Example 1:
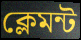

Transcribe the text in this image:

ক্লেমন্ট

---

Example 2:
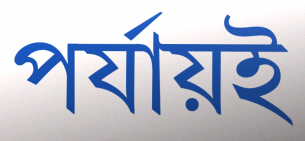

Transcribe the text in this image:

পর্যায়ই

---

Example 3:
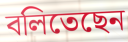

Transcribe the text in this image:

বলিতেছেন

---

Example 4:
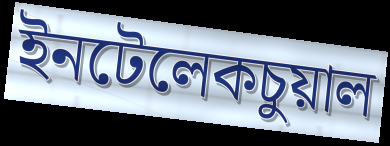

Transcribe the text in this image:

ইনটেলেকচুয়াল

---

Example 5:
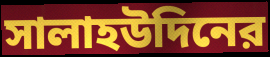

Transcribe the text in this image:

সালাহউদিনের